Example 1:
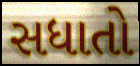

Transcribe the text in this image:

સધાતો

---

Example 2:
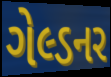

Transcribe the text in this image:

ગેલ્ડનર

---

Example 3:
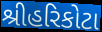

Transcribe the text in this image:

શ્રીહરિકોટા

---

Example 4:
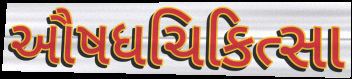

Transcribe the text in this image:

ઔષધચિકિત્સા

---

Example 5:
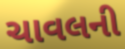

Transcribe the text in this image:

ચાવલની